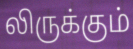
லிருக்கும்